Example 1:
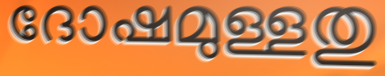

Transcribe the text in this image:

ദോഷമുള്ളതു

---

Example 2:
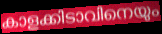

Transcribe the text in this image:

കാളക്കിടാവിനെയും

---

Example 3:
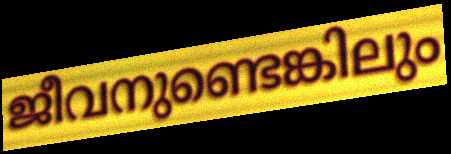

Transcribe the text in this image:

ജീവനുണ്ടെങ്കിലും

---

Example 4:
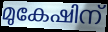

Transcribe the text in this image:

മുകേഷിന്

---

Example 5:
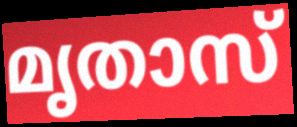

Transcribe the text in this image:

മൃതാസ്